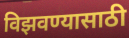
विझवण्यासाठी